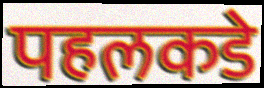
पहलकडे